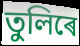
তুলিৰে